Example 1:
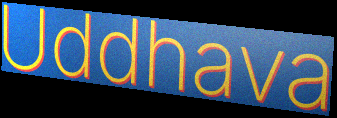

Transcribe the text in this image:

Uddhava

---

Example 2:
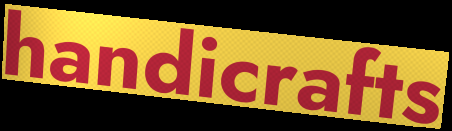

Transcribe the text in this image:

handicrafts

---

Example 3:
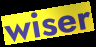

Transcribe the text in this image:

wiser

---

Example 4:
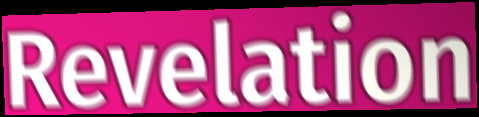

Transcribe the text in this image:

Revelation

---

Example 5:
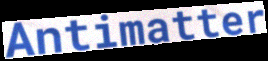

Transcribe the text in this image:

Antimatter